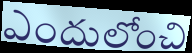
ఎందులోంచి